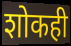
शोकही